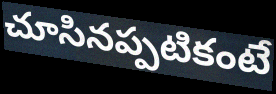
చూసినప్పటికంటే